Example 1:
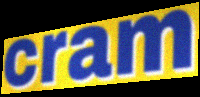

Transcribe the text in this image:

cram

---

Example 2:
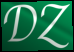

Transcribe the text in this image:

DZ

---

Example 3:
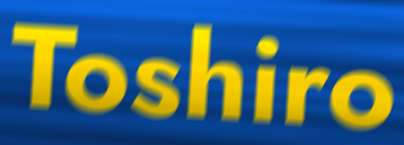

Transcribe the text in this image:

Toshiro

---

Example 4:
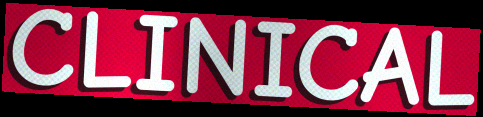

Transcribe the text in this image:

CLINICAL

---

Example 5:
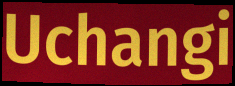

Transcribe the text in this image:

Uchangi